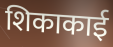
शिकाकाई